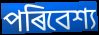
পৰিবেশ্য